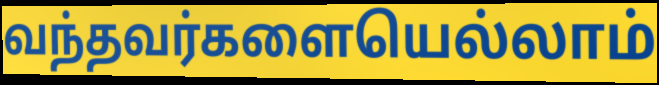
வந்தவர்களையெல்லாம்